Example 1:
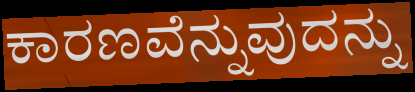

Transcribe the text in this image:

ಕಾರಣವೆನ್ನುವುದನ್ನು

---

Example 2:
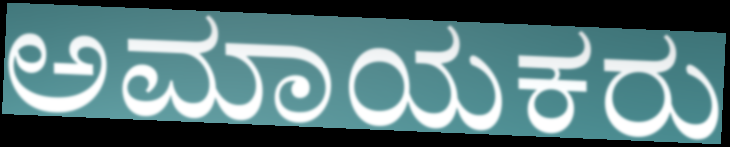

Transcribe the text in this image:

ಅಮಾಯಕರು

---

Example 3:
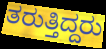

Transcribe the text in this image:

ತರುತ್ತಿದ್ದರು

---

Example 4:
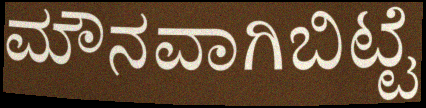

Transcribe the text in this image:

ಮೌನವಾಗಿಬಿಟ್ಟೆ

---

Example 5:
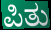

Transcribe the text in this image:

ಪಿತು